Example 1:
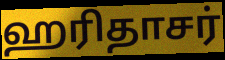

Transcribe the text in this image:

ஹரிதாசர்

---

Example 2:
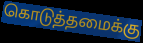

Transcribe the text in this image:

கொடுத்தமைக்கு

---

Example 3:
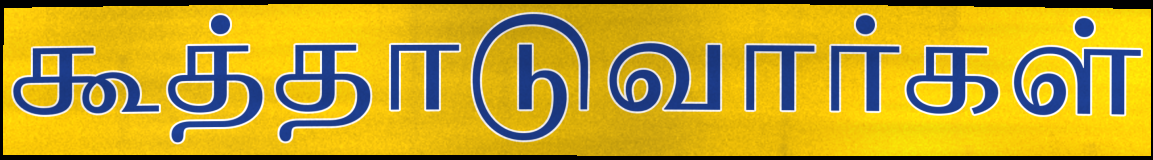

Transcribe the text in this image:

கூத்தாடுவார்கள்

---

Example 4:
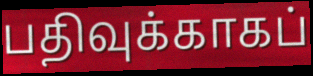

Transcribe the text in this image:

பதிவுக்காகப்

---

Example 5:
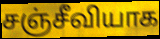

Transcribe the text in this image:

சஞ்சீவியாக